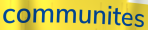
communites